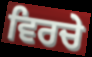
ਵਿਰਚੇ